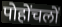
पोहोंचलों